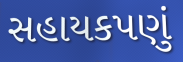
સહાયકપણું